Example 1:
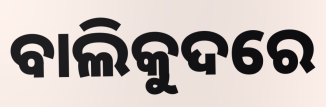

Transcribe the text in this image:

ବାଲିକୁଦରେ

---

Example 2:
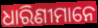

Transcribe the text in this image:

ଧାରିଣୀମାନେ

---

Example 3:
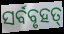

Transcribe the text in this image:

ସର୍ବବୃହତ୍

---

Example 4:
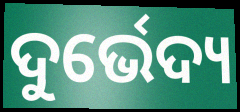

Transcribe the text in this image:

ଦୁର୍ଭେଦ୍ୟ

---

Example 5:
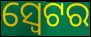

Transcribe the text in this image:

ସ୍ଵେଟର